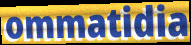
ommatidia